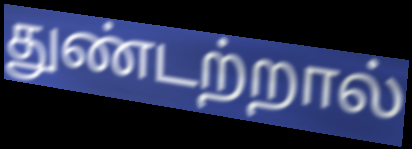
துண்டற்றால்